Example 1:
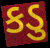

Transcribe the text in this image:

કડુ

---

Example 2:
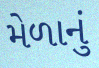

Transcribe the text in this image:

મેળાનું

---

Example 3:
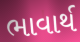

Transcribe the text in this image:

ભાવાર્થ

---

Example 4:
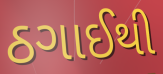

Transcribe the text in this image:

ઠગાઈથી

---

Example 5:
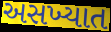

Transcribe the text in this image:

અસખ્યાત